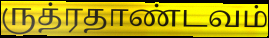
ருத்ரதாண்டவம்